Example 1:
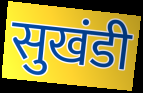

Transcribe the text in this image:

सुखंडी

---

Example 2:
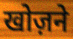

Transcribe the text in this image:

खोज़ने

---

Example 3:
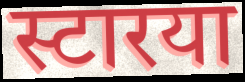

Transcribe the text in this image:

स्टारया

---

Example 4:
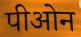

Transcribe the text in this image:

पीओन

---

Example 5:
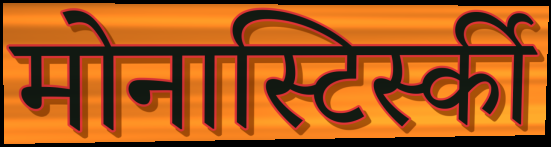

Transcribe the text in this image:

मोनास्टिर्स्की